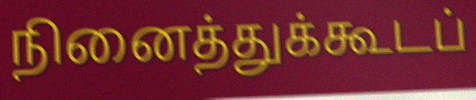
நினைத்துக்கூடப்